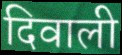
दिवाली